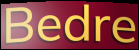
Bedre